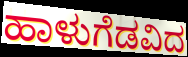
ಹಾಳುಗೆಡವಿದ